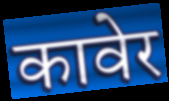
कावेर